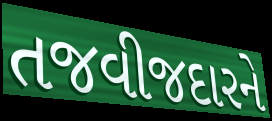
તજવીજદારને